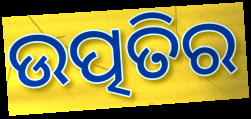
ଉତ୍ପତିର